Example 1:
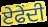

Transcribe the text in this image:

ਏਫੇਂਦੀ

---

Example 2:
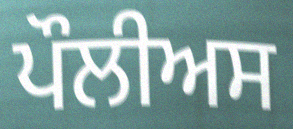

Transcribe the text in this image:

ਪੌਲੀਅਸ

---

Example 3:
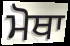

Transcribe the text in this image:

ਮੋਥਾ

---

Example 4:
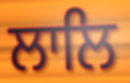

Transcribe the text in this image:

ਲਾਲਿ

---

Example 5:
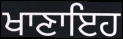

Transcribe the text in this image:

ਖਾਣਾਇਹ